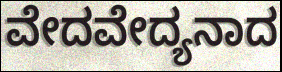
ವೇದವೇದ್ಯನಾದ